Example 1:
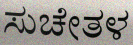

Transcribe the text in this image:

ಸುಚೇತಳ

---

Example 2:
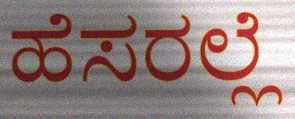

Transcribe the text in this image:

ಹೆಸರಲ್ಲೆ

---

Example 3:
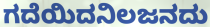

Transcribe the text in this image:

ಗದೆಯಿದನಿಲಜನದು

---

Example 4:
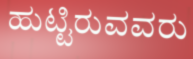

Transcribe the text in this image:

ಹುಟ್ಟಿರುವವರು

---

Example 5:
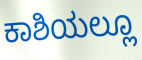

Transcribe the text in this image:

ಕಾಶಿಯಲ್ಲೂ